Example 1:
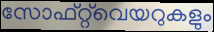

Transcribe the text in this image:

സോഫ്റ്റ്‌വെയറുകളും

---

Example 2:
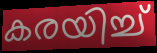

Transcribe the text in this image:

കരയിച്ച്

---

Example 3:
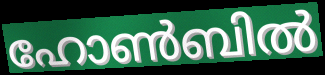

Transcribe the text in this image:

ഹോൺബിൽ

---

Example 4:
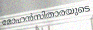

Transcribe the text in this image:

മോഹൻസിതാരയുടെ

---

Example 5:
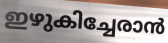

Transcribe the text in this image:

ഇഴുകിച്ചേരാൻ